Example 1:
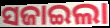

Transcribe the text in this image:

ସଜାଇଲା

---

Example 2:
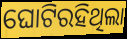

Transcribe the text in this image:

ଘୋଟିରହିଥିଲା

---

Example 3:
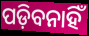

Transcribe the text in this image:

ପଡ଼ିବନାହିଁ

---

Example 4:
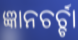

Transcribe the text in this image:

ଜ୍ଞାନଚର୍ଚ୍ଚା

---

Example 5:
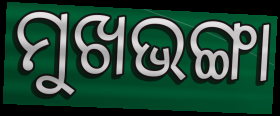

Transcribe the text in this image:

ମୁଖଭଙ୍ଗା